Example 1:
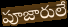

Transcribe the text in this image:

పూజారులే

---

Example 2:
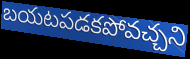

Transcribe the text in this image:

బయటపడకపోవచ్చని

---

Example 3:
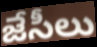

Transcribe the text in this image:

జేసీలు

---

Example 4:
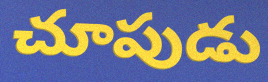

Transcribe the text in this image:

చూపుడు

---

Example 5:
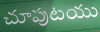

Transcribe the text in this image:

చూపుటయు